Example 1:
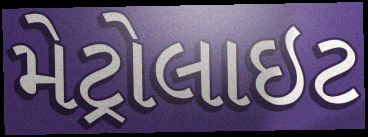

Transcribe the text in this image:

મેટ્રોલાઇટ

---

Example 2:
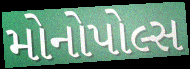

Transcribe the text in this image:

મોનોપોલ્સ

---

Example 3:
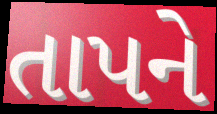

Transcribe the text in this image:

તાપને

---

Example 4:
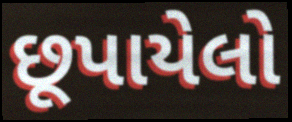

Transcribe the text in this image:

છૂપાયેલો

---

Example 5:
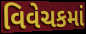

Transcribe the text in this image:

વિવેચકમાં